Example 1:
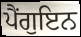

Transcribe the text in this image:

ਪੈਂਗੁਇਨ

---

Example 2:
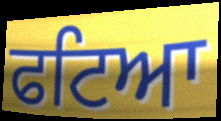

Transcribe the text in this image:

ਫਟਿਆ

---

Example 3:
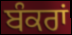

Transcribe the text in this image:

ਬੰਕਰਾਂ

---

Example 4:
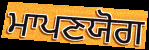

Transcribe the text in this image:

ਮਾਪਣਯੋਗ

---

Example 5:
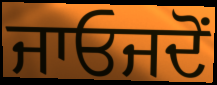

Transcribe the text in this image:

ਜਾਓਜਦੋਂ